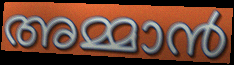
അമ്മാൻ